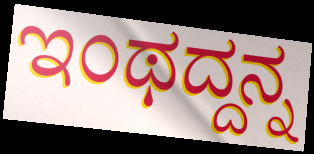
ಇಂಥದ್ದನ್ನ